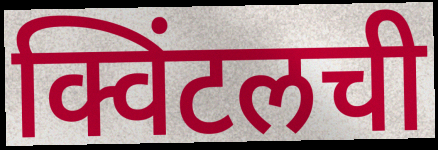
क्विंटलची